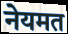
नेयमत